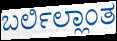
ಬರ್ಲಿಲ್ಲಾಂತ